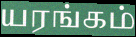
யரங்கம்